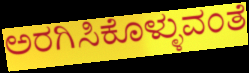
ಅರಗಿಸಿಕೊಳ್ಳುವಂತೆ